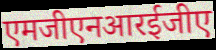
एमजीएनआरईजीए